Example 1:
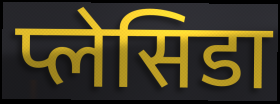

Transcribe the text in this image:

प्लेसिडा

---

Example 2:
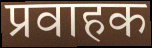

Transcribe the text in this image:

प्रवाहक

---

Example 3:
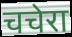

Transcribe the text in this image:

चचेरा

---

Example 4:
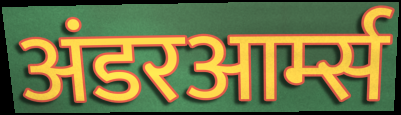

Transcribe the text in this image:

अंडरआर्म्‍स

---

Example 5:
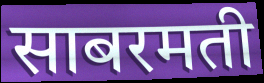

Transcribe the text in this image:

साबरमती